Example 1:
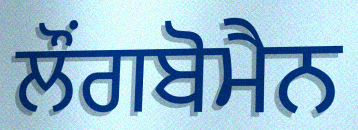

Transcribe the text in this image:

ਲੌਂਗਬੋਮੈਨ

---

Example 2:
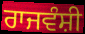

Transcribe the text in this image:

ਰਾਜਵੰਸ਼ੀ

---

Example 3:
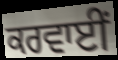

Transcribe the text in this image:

ਕਰਵਾਈਂ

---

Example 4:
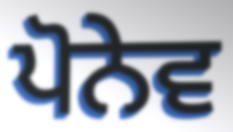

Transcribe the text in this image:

ਪੋਨੇਵ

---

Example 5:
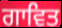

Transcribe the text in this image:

ਗਾਵਿਤ